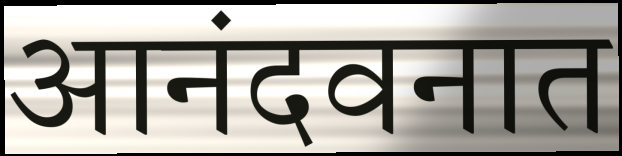
आनंदवनात